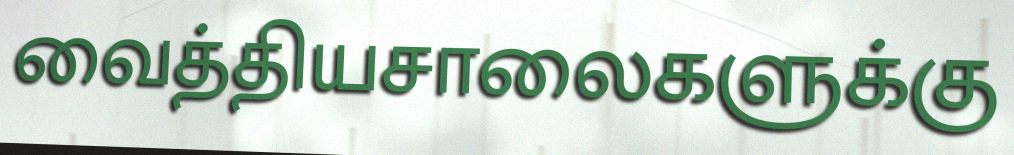
வைத்தியசாலைகளுக்கு